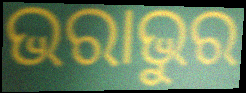
ଭରାଭୁର